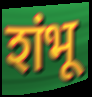
शंभू